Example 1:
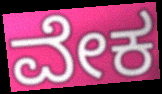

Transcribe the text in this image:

ವೇಕ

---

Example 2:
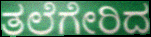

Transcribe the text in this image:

ತಲೆಗೇರಿದ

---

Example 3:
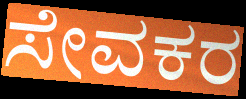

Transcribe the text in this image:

ಸೇವಕರ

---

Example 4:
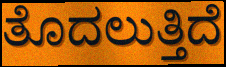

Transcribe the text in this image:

ತೊದಲುತ್ತಿದೆ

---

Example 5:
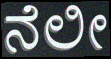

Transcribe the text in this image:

ನೆಲೀ